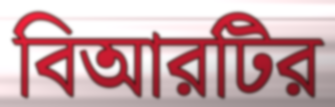
বিআরটির